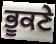
ਭੂਕਣੇ